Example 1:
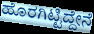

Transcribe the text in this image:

ಹೊರಗಿಟ್ಟಿದ್ದೇನೆ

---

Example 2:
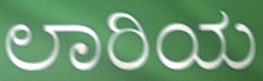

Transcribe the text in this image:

ಲಾರಿಯ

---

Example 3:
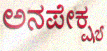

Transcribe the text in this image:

ಅನಪೇಕ್ಷ್ಯ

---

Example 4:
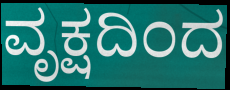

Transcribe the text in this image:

ವೃಕ್ಷದಿಂದ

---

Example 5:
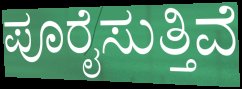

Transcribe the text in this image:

ಪೂರೈಸುತ್ತಿವೆ